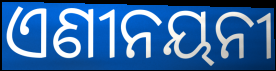
ଏଣୀନୟନୀ